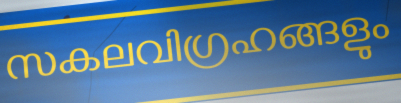
സകലവിഗ്രഹങ്ങളും